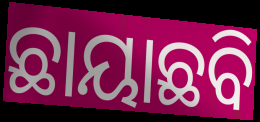
ଛାୟାଛବି